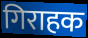
गिराहक